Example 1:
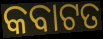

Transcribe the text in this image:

କବାଟତ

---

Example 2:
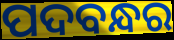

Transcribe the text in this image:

ପଦବନ୍ଧର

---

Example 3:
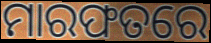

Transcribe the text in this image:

ମାରଫତରେ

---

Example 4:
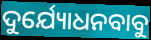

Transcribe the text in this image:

ଦୁର୍ଯ୍ୟୋଧନବାବୁ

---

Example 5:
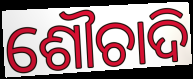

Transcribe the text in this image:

ଶୌଚାଦି